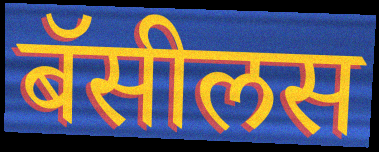
बॅसीलस